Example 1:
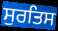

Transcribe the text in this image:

ਸੁਰਤਿਸ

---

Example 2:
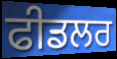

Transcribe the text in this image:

ਫੀਡਲਰ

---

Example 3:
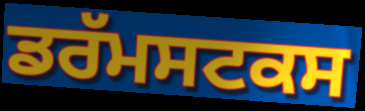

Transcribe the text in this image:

ਡਰੱਮਸਟਕਸ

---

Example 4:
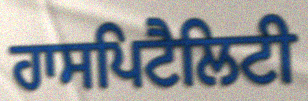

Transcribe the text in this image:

ਹਾਸਪਿਟੈਲਿਟੀ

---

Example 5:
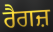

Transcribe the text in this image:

ਰੈਗਜ਼